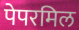
पेपरमिल